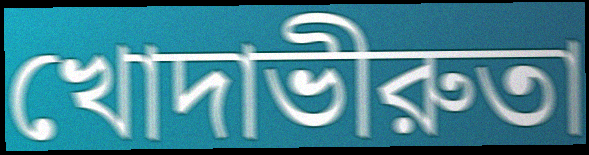
খোদাভীরুতা